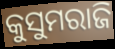
କୁସୁମରାଜି